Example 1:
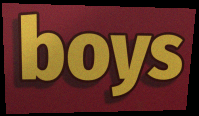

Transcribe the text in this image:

boys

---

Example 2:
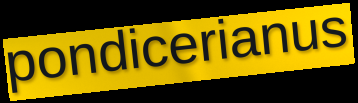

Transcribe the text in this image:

pondicerianus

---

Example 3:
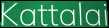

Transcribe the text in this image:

Kattalai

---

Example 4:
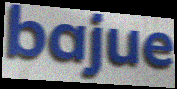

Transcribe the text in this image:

bajue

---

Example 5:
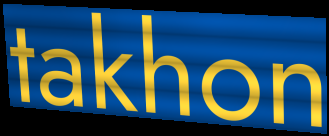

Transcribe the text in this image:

takhon